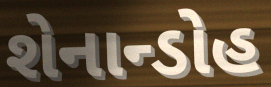
શેનાન્ડોહ